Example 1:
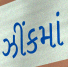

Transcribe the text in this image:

ઝીંકમાં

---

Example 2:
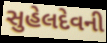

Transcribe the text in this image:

સુહેલદેવની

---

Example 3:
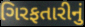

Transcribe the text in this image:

ગિરફતારીનું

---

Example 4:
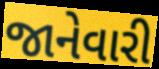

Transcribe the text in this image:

જાનેવારી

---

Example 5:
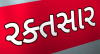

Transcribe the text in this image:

રક્તસાર